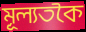
মূল্যতকৈ